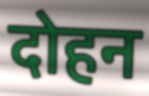
दोहन